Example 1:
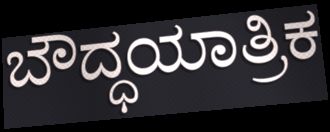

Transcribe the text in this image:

ಬೌದ್ಧಯಾತ್ರಿಕ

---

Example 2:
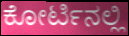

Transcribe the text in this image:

ಕೋರ್ಟಿನಲ್ಲಿ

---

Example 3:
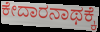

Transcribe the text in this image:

ಕೇದಾರನಾಥಕ್ಕೆ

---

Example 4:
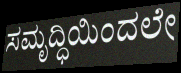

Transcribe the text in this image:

ಸಮೃದ್ಧಿಯಿಂದಲೇ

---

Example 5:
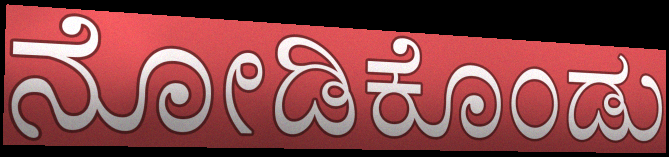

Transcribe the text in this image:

ನೋಡಿಕೊಂಡು